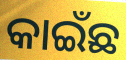
କାଇଁଛ